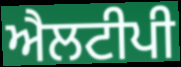
ਐਲਟੀਪੀ